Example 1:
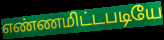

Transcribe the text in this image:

எண்ணமிட்டபடியே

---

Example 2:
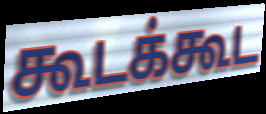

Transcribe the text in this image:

கூடக்கூட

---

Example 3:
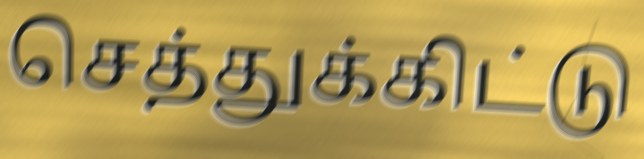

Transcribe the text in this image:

செத்துக்கிட்டு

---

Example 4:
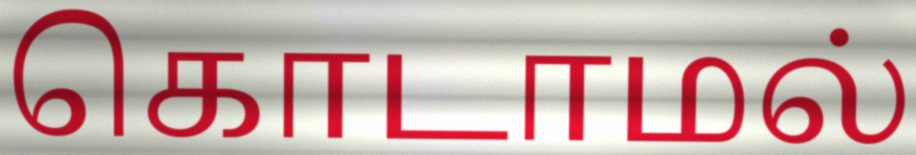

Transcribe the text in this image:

கொடாமல்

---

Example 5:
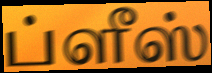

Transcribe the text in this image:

ப்ளீஸ்